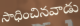
సాధించినవాడు